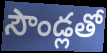
సౌండ్లతో